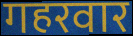
गहरवार